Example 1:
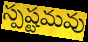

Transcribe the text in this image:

స్పష్టమవు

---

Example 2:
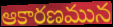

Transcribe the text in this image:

ఆకారణమున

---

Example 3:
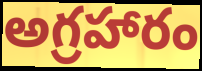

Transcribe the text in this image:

అగ్రహారం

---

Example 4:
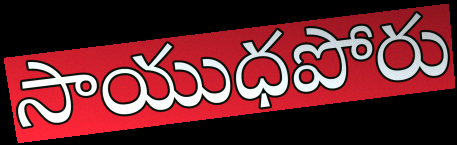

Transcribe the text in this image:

సాయుధపోరు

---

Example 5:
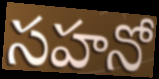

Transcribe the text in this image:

సహనో